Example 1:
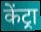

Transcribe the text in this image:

केंट्रा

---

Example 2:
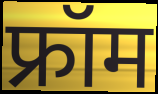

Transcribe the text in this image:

फ्रॉम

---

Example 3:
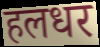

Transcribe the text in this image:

हलधर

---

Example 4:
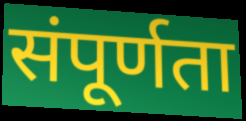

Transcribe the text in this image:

संपूर्णता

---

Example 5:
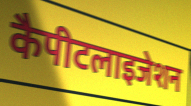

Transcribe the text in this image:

कैपीटलाइजेशन